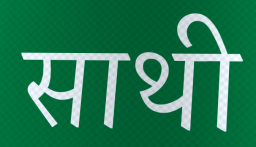
साथी